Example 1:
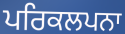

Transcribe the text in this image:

ਪਰਿਕਲਪਨਾ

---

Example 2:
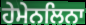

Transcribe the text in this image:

ਹੇਮੇਨਲਿਨਾ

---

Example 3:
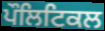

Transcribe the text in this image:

ਪੌਲਿਟਿਕਲ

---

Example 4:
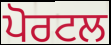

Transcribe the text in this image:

ਪੋਰਟਲ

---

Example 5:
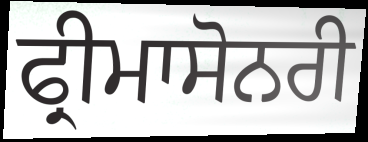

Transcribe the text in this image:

ਫ੍ਰੀਮਾਸੋਨਰੀ